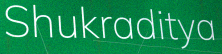
Shukraditya